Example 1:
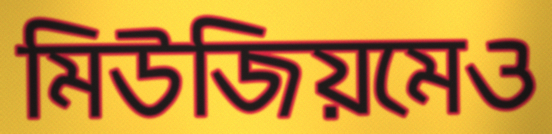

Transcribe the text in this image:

মিউজিয়মেও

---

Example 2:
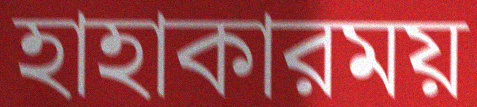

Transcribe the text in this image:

হাহাকারময়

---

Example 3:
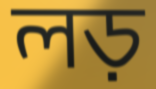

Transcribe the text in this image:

লড়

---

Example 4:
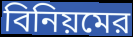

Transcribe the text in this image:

বিনিয়মের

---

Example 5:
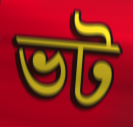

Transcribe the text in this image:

ভট